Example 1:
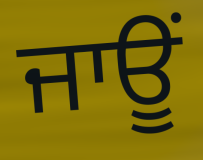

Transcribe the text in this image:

ਜਾਊਂ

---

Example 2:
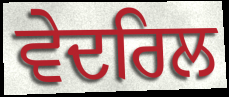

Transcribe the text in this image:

ਵੇਦਰਿਲ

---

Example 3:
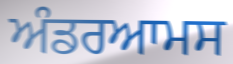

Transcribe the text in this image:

ਅੰਡਰਆਮਸ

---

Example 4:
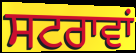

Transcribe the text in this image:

ਸਟਰਾਵਾਂ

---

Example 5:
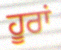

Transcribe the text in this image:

ਹੂਰਾਂ